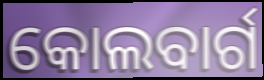
କୋଲବାର୍ଗ